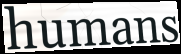
humans